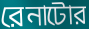
রেনাটোর